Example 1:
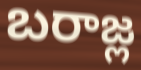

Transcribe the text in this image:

బరాజ్ల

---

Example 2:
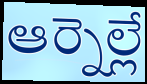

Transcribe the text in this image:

ఆర్నెల్లే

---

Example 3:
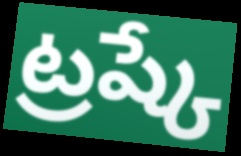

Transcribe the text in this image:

ట్రష్కే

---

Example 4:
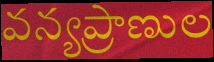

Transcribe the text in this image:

వన్యప్రాణుల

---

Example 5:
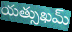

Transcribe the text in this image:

యత్సుఖమ్